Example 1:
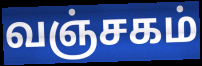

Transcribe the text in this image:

வஞ்சகம்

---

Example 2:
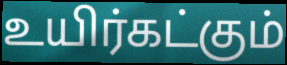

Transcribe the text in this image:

உயிர்கட்கும்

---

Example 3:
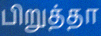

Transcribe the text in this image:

பிறுத்தா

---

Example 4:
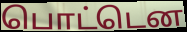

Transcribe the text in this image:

பொட்டென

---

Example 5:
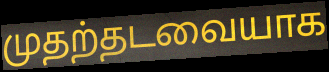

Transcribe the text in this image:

முதற்தடவையாக